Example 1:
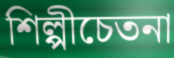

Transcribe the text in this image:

শিল্পীচেতনা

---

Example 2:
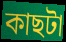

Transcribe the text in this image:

কাছটা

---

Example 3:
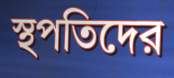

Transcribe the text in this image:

স্থপতিদের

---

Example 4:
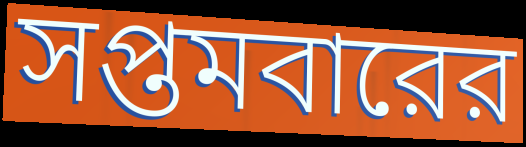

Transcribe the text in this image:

সপ্তমবারের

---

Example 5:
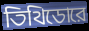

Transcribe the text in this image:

তিথিডোরে